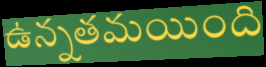
ఉన్నతమయింది